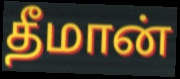
தீமான்